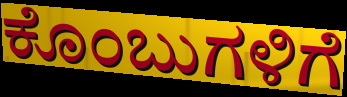
ಕೊಂಬುಗಳಿಗೆ